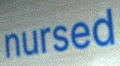
nursed